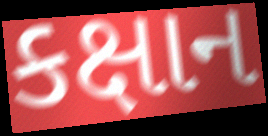
કક્ષાન